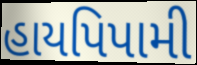
હાયપિપામી